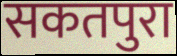
सकतपुरा